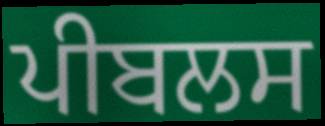
ਪੀਬਲਸ